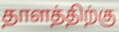
தாளத்திற்கு